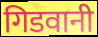
गिडवानी